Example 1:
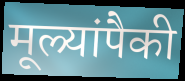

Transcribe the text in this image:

मूल्यांपैकी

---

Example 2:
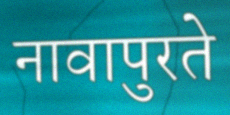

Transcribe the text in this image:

नावापुरते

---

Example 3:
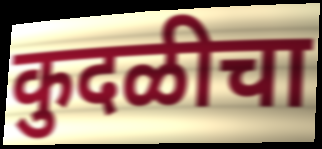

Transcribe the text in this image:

कुदळीचा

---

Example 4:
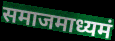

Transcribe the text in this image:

समाजमाध्यमं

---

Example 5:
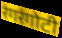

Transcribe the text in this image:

रंगरंगोटी